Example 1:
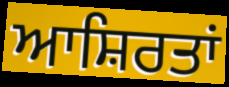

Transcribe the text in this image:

ਆਸ਼ਿਰਤਾਂ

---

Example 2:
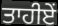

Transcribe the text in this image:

ਤਾਹੀਏਂ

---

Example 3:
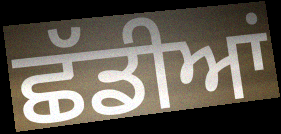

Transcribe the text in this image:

ਛੱਡੀਆਂ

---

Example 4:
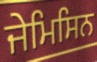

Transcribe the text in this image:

ਜੇਮਿਸਿਨ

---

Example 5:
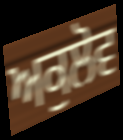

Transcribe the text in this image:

ਅਕੁਲੋਵ